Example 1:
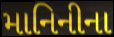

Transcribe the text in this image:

માનિનીના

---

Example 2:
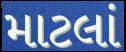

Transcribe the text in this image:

માટલાં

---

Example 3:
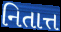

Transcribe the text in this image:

નિતાત્ત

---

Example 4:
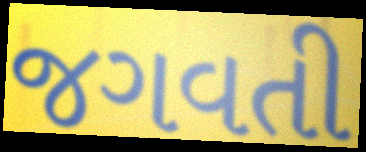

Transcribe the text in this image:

જગવતી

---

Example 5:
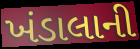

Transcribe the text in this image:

ખંડાલાની